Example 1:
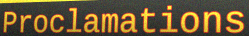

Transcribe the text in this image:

Proclamations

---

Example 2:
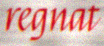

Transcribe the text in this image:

regnat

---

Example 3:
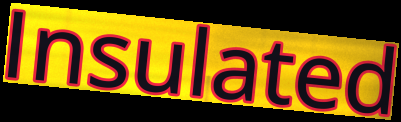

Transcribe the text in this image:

Insulated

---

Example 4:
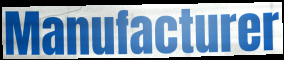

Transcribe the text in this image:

Manufacturer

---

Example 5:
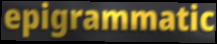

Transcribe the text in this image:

epigrammatic